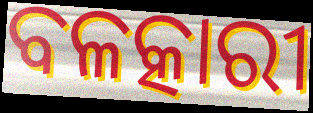
ବଳତ୍କାରୀ